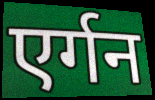
एर्गन